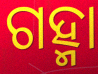
ଗହ୍ମା